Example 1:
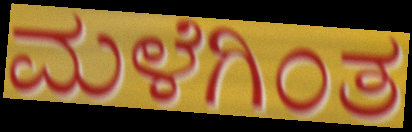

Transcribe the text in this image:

ಮಳೆಗಿಂತ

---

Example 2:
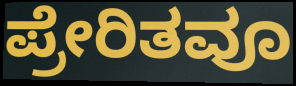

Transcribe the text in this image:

ಪ್ರೇರಿತವೂ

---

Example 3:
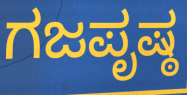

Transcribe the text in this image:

ಗಜಪೃಷ್ಠ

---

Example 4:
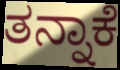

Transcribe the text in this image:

ತನ್ನಾಕೆ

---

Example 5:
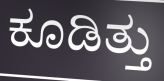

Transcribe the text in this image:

ಕೂಡಿತ್ತು